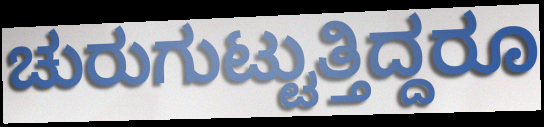
ಚುರುಗುಟ್ಟುತ್ತಿದ್ದರೂ